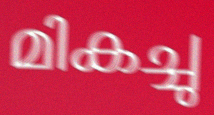
മികച്ചു